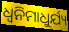
ଧ୍ୱନିମାଧୁର୍ଯ୍ୟ